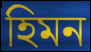
হিমন